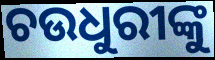
ଚଉଧୁରୀଙ୍କୁ